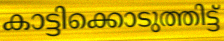
കാട്ടിക്കൊടുത്തിട്ട്